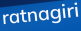
ratnagiri